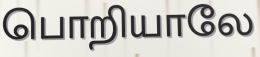
பொறியாலே